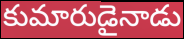
కుమారుడైనాడు